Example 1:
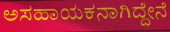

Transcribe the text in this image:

ಅಸಹಾಯಕನಾಗಿದ್ದೇನೆ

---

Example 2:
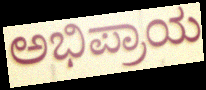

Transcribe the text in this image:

ಅಭಿಪ್ರಾಯ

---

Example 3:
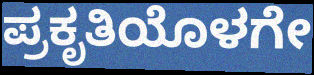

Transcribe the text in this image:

ಪ್ರಕೃತಿಯೊಳಗೇ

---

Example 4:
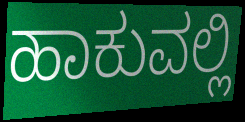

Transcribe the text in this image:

ಹಾಕುವಲ್ಲಿ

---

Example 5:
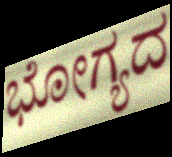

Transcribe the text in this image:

ಭೋಗ್ಯದ